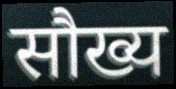
सौख्य